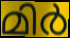
മിർ